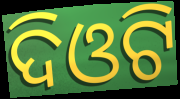
ଦିଓଟି